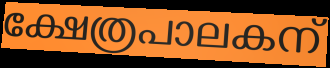
ക്ഷേത്രപാലകന്